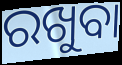
ରଖୁବା